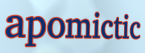
apomictic